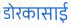
डोरकासाई